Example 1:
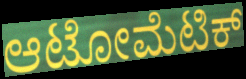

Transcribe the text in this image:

ಆಟೋಮೆಟಿಕ್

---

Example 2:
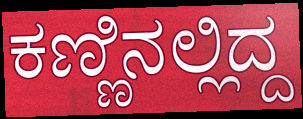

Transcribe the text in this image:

ಕಣ್ಣಿನಲ್ಲಿದ್ದ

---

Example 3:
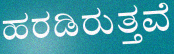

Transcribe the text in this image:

ಹರಡಿರುತ್ತವೆ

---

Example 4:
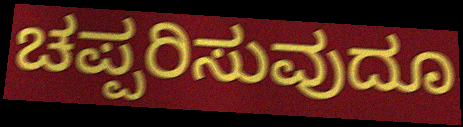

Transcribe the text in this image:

ಚಪ್ಪರಿಸುವುದೂ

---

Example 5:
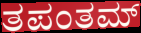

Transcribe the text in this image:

ತಪಂತಮ್